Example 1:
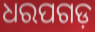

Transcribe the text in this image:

ଧରପଗଡ଼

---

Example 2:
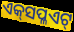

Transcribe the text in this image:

ଏକ୍‍ସପ୍ଳଏଟ୍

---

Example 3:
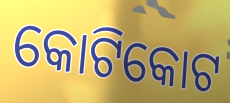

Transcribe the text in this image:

କୋଟିକୋଟ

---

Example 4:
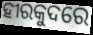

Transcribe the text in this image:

ହୀରକୁଦରେ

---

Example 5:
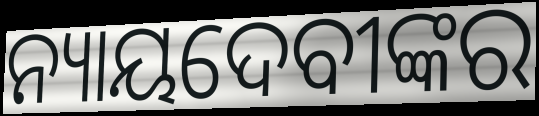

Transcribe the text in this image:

ନ୍ୟାୟଦେବୀଙ୍କର